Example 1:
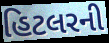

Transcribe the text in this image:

હિટલરની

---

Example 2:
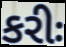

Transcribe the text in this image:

કરીઃ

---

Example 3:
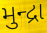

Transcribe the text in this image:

મુન્દ્રા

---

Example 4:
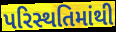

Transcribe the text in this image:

પરિસ્થતિમાંથી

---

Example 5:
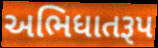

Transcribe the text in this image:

અભિધાતરૂપ